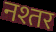
नश्तर